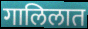
गालिलात